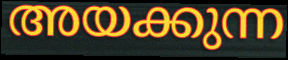
അയക്കുന്ന